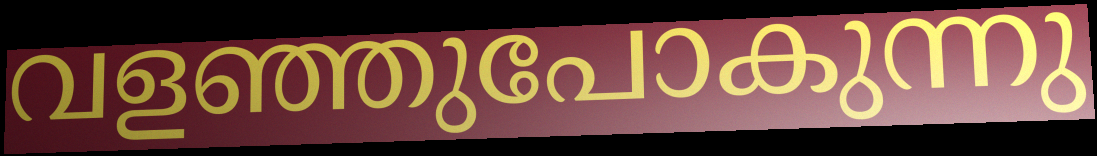
വളഞ്ഞുപോകുന്നു